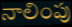
నాలింపు